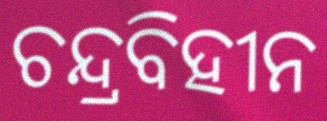
ଚନ୍ଦ୍ରବିହୀନ